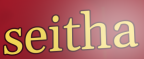
seitha